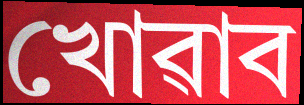
খোৱাব